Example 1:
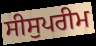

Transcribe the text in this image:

ਸੀਸੁਪਰੀਮ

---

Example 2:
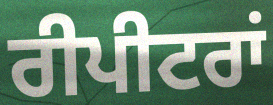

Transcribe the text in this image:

ਰੀਪੀਟਰਾਂ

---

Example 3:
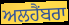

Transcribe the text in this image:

ਅਲਹੈਂਬਰਾ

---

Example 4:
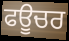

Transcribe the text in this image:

ਫਊਚਰ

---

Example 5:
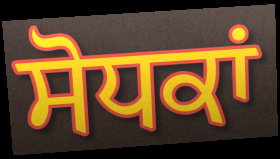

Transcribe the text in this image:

ਸੋਧਕਾਂ